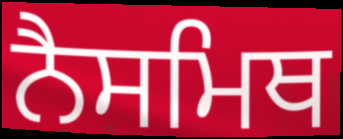
ਨੈਸਮਿਥ